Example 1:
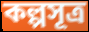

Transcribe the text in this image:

কল্পসূত্র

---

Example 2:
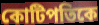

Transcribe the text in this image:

কোটিপতিকে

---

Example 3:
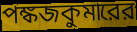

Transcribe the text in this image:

পঙ্কজকুমারের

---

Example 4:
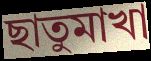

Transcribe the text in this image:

ছাতুমাখা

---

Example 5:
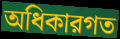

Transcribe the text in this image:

অধিকারগত